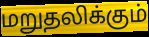
மறுதலிக்கும்